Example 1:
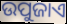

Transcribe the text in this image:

ଉପୁଜାଏ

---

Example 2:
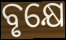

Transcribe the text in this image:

ବୃକ୍ଷେ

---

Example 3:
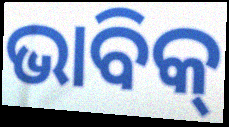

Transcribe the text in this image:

ଭାବିକ୍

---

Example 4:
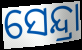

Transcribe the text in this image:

ସେନ୍ଦ୍ରା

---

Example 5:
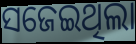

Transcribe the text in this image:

ସଜେଇଥିଲା